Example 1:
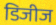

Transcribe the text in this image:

डिजीज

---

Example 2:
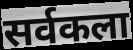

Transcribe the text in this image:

सर्वकला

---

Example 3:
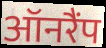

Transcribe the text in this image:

ऑनरैंप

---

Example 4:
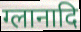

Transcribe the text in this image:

ग्लानादि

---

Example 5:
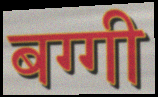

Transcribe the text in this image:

बग्गी